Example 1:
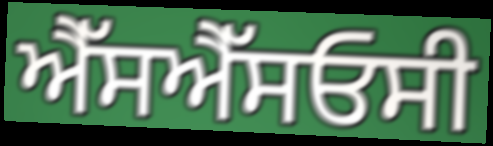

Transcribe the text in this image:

ਐੱਸਐੱਸਓਸੀ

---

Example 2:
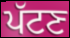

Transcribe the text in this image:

ਪੱਟਣ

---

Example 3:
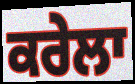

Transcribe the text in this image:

ਕਰੇਲਾ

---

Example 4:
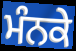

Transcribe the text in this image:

ਮੰਨਕੇ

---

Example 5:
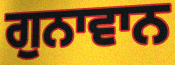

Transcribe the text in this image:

ਗੁਨਾਵਾਨ